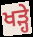
ਖਡ਼੍ਹੇ